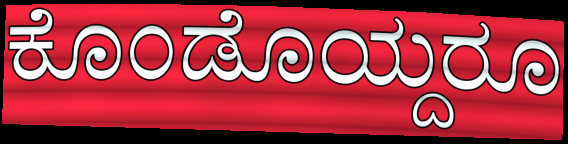
ಕೊಂಡೊಯ್ದರೂ